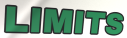
LIMITS